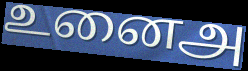
உனைஅ